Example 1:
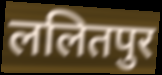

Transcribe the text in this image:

ललितपुर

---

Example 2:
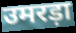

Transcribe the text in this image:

उमरड़ा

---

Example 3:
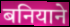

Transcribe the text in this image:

बनियाने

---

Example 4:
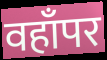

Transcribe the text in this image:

वहाँपर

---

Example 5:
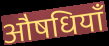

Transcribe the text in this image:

औषधियाँ